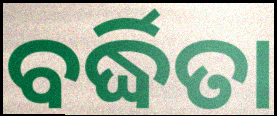
ବର୍ଦ୍ଧିତା